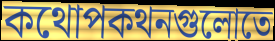
কথোপকথনগুলোতে